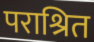
पराश्रित